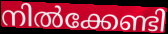
നിൽക്കേണ്ടി